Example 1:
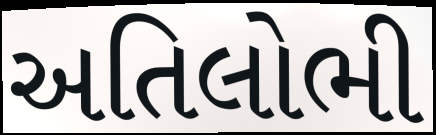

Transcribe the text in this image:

અતિલોભી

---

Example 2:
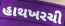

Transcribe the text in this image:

હાથખરચી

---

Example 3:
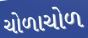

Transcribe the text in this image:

ચોળાચોળ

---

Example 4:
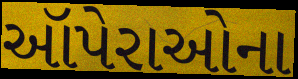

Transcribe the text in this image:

ઑપેરાઓના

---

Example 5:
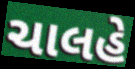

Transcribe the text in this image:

ચાલહે